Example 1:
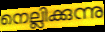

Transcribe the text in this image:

നെല്ലിക്കുന്നു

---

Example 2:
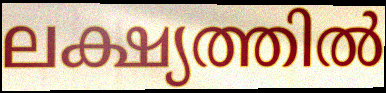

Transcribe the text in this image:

ലക്ഷ്യത്തിൽ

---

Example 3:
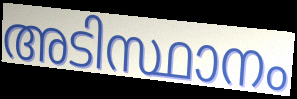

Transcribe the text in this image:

അടിസ്ഥാനം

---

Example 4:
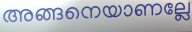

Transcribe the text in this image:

അങ്ങനെയാണല്ലേ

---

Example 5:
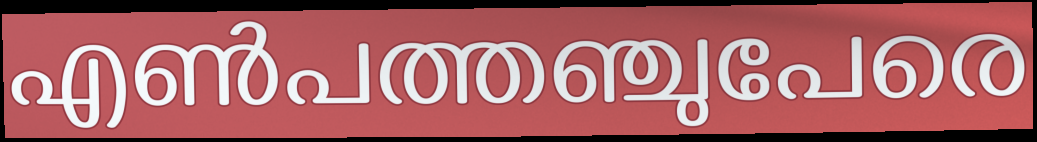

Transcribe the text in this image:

എൺപത്തഞ്ചുപേരെ